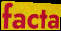
facta